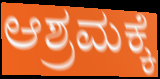
ಆಶ್ರಮಕ್ಕೆ